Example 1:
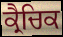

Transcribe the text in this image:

ਕ੍ਰੈਚਿਕ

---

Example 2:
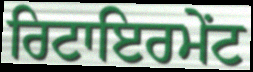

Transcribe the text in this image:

ਰਿਟਾਇਰਮੇਂਟ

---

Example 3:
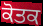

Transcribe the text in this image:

ਕੋਤਕ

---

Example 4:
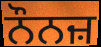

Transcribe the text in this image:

ਨੌਨਜ਼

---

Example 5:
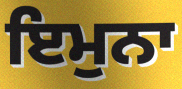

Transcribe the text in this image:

ਇਮੁਨਾ